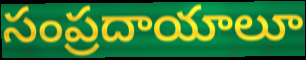
సంప్రదాయాలూ